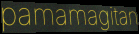
pamamagitan